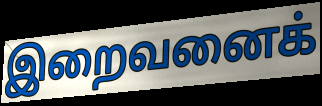
இறைவனைக்